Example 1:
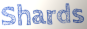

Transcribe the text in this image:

Shards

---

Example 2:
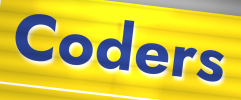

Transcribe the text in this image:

Coders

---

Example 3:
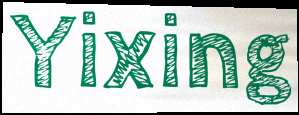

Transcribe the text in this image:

Yixing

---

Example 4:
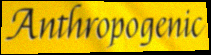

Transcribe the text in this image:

Anthropogenic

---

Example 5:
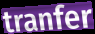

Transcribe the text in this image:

tranfer